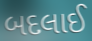
બદલાઈ